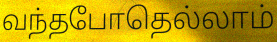
வந்தபோதெல்லாம்